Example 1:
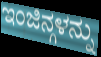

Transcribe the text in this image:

ಇಂಜಿನ್ಗಳನ್ನು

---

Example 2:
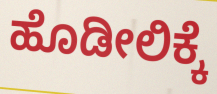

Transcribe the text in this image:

ಹೊಡೀಲಿಕ್ಕೆ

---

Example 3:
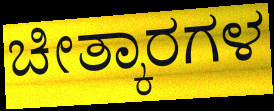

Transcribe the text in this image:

ಚೀತ್ಕಾರಗಳ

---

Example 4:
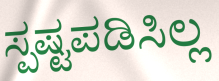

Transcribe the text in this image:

ಸ್ಪಷ್ಟಪಡಿಸಿಲ್ಲ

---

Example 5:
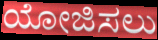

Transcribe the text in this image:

ಯೋಜಿಸಲು